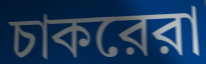
চাকরেরা